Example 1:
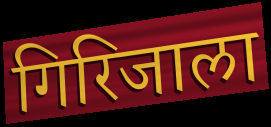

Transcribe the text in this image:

गिरिजाला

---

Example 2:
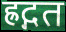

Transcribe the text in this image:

ह्रद्गत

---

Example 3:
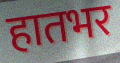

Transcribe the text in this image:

हातभर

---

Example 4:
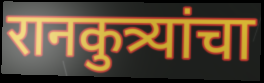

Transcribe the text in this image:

रानकुत्र्यांचा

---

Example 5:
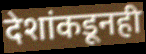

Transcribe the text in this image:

देशांकडूनही